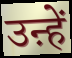
उऩ्हें